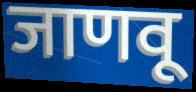
जाणवू